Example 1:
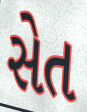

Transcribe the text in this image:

સેત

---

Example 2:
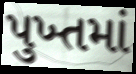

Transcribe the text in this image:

પુખ્તમાં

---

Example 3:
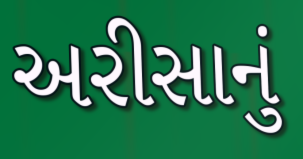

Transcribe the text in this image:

અરીસાનું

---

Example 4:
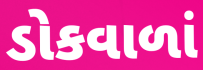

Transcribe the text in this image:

ડોકવાળાં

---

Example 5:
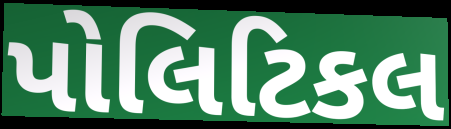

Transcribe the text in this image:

પોલિટિકલ